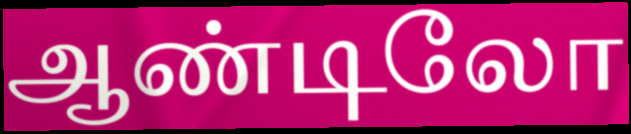
ஆண்டிலோ